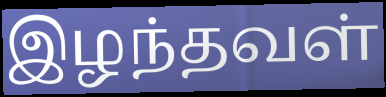
இழந்தவள்